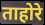
ताहोरे